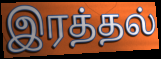
இரத்தல்